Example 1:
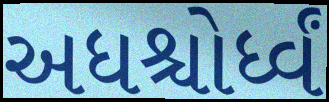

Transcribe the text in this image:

અધશ્ચોર્ધ્વં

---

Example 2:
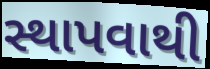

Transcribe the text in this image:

સ્થાપવાથી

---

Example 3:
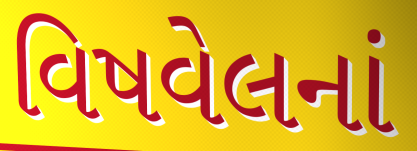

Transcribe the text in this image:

વિષવેલનાં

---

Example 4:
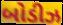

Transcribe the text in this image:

બોડીઝ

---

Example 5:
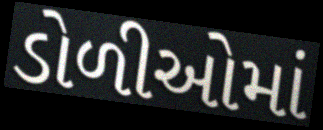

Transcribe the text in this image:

ડોળીઓમાં